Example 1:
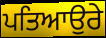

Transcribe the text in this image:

ਪਤਿਆਉਰੇ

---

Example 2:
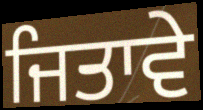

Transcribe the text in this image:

ਜਿਤਾਵੇ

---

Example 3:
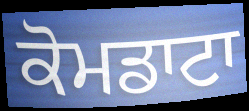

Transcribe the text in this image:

ਕੋਮਡਾਟਾ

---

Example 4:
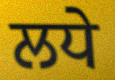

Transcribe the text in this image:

ਲਧੇ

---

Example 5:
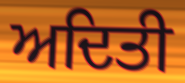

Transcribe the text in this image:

ਅਦਿਤੀ